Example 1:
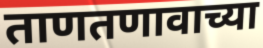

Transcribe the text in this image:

ताणतणावाच्या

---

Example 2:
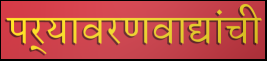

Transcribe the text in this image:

पर्यावरणवाद्यांची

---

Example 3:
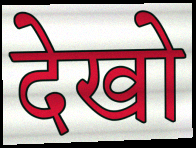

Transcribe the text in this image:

देखो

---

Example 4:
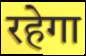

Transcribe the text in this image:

रहेगा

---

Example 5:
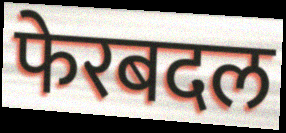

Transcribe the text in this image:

फेरबदल